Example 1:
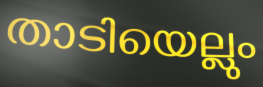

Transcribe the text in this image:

താടിയെല്ലും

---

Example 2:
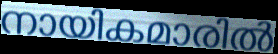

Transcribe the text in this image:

നായികമാരിൽ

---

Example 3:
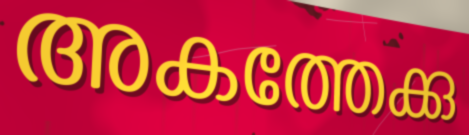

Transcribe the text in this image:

അകത്തേക്കു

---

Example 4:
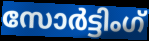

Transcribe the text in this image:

സോർട്ടിംഗ്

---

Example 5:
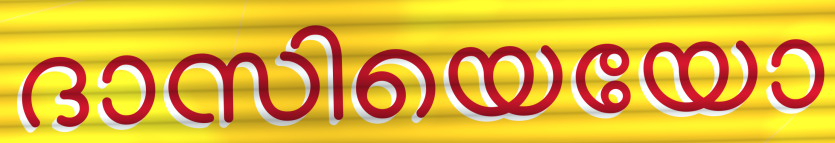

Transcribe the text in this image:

ദാസിയെയോ